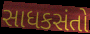
સાધકસંતો